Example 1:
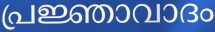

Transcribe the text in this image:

പ്രജ്ഞാവാദം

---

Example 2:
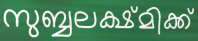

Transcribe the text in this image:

സുബ്ബലക്ഷ്മിക്ക്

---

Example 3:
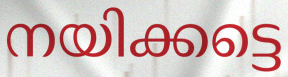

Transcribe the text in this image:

നയിക്കട്ടെ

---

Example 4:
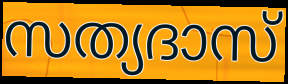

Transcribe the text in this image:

സത്യദാസ്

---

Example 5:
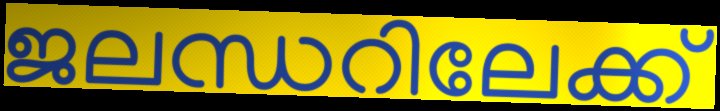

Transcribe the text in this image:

ജലന്ധറിലേക്ക്